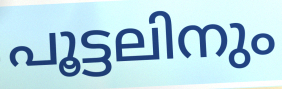
പൂട്ടലിനും